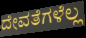
ದೇವತೆಗಳೆಲ್ಲ